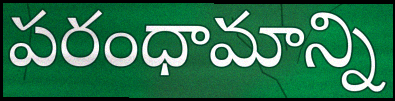
పరంధామాన్ని